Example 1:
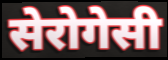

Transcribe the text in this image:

सेरोगेसी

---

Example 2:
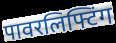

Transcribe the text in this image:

पावरलिफ्टिंग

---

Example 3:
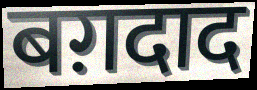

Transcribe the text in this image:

बग़दाद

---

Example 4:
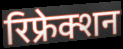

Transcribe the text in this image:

रिफ्रेक्शन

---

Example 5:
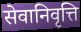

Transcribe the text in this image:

सेवानिवृत्ति